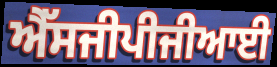
ਐੱਸਜੀਪੀਜੀਆਈ